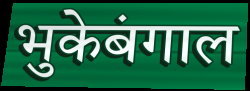
भुकेबंगाल